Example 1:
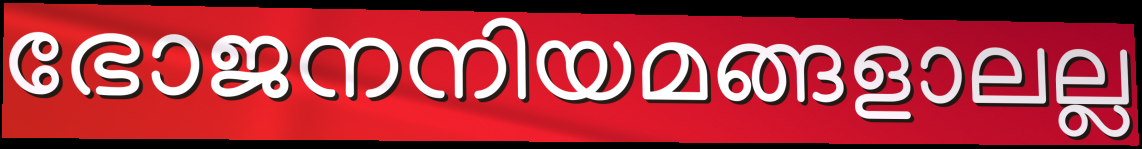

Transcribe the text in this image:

ഭോജനനിയമങ്ങളാലല്ല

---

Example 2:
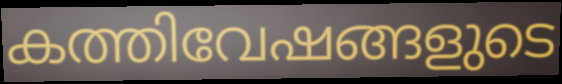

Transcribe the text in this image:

കത്തിവേഷങ്ങളുടെ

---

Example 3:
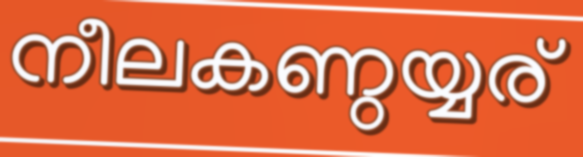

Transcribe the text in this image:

നീലകണ്ഠയ്യര്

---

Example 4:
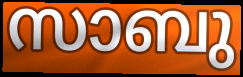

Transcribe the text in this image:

സാബു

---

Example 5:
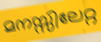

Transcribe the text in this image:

മനസ്സിലേറ്റ